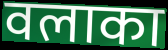
वलाका